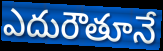
ఎదురౌతూనే